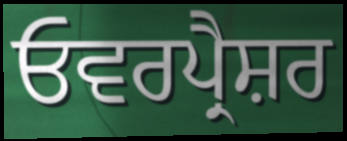
ਓਵਰਪ੍ਰੈਸ਼ਰ